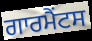
ਗਾਰਮੈਂਟਸ